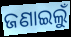
ଜଣାଇଲୁଁ